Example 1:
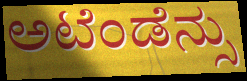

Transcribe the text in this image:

ಅಟೆಂಡೆನ್ಸು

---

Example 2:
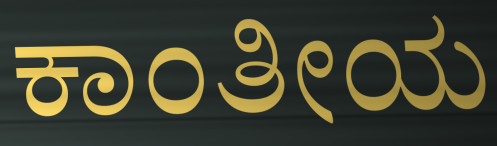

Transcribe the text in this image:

ಕಾಂತೀಯ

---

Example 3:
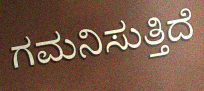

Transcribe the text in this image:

ಗಮನಿಸುತ್ತಿದೆ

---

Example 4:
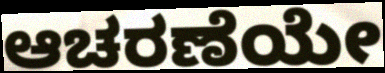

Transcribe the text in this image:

ಆಚರಣೆಯೇ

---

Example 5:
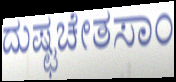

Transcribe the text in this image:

ದುಷ್ಟಚೇತಸಾಂ